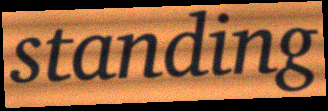
standing